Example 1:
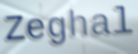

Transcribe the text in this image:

Zeghal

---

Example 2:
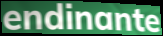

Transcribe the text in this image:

endinante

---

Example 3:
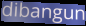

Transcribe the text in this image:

dibangun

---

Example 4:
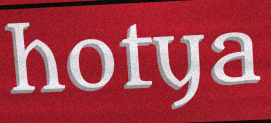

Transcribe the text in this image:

hotya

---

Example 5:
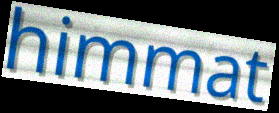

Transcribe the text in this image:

himmat